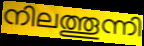
നിലത്തൂന്നി